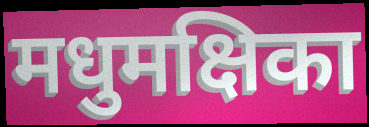
मधुमक्षिका